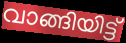
വാങ്ങിയിട്ട്